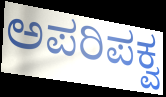
ಅಪರಿಪಕ್ವ